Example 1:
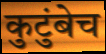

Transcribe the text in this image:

कुटुंबेच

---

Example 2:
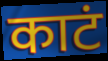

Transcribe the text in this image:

काटं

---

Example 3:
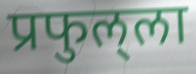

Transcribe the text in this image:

प्रफुल्ला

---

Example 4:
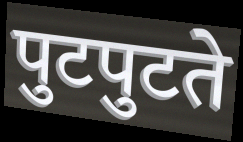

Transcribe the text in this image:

पुटपुटते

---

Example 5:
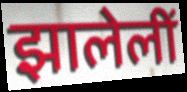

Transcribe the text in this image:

झालेलीं